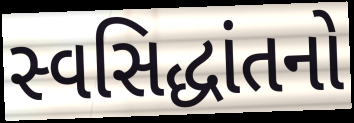
સ્વસિદ્ધાંતનો